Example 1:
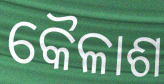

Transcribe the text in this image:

କୈଳାଶ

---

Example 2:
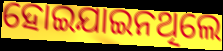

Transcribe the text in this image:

ହୋଇଯାଇନଥିଲେ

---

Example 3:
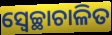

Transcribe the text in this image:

ସ୍ୱେଚ୍ଛାଚାଳିତ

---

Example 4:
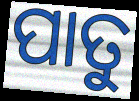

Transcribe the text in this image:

ପାତୁ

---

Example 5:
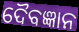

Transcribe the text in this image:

ଦୈବଜ୍ଞାନ